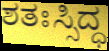
ಶತಃಸ್ಸಿದ್ಧ